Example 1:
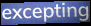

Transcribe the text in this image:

excepting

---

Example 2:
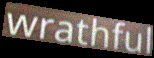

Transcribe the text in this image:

wrathful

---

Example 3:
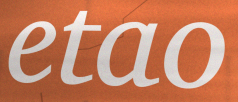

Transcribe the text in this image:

etao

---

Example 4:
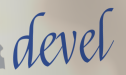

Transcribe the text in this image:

devel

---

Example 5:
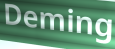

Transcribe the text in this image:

Deming